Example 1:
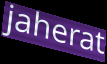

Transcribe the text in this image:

jaherat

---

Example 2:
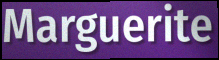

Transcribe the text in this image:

Marguerite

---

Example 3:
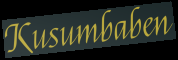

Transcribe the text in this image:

Kusumbaben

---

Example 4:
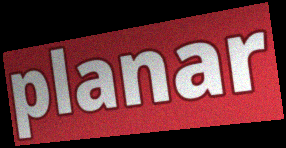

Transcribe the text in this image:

planar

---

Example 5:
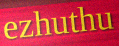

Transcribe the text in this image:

ezhuthu